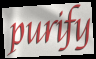
purify